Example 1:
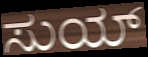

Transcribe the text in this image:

ಸುಯ್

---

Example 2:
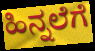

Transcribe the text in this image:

ಹಿನ್ನಲೆಗೆ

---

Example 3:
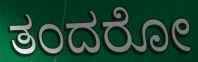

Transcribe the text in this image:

ತಂದರೋ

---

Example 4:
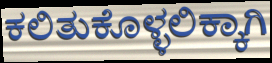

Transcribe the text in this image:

ಕಲಿತುಕೊಳ್ಳಲಿಕ್ಕಾಗಿ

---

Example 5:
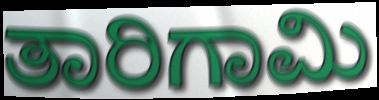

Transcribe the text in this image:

ತಾರಿಗಾಮಿ